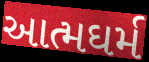
આત્મઘર્મ